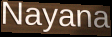
Nayana